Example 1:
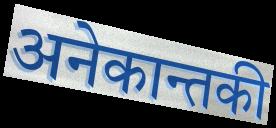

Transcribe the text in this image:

अनेकान्तकी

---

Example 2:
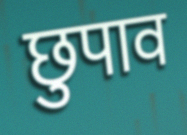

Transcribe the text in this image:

छुपाव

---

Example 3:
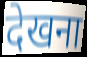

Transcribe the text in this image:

देखना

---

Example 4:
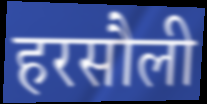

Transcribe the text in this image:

हरसौली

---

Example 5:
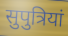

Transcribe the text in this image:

सुपुत्रियां